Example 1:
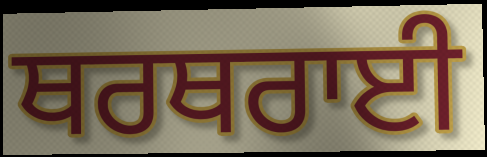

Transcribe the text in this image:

ਥਰਥਰਾਈ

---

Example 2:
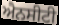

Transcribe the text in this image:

ਐਨਸੀਟੀ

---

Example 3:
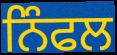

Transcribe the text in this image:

ਨਿੰਫਲ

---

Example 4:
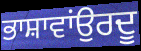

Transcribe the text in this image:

ਭਾਸ਼ਾਵਾਂਉਰਦੂ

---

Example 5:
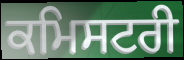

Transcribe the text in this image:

ਕਮਿਸਟਰੀ